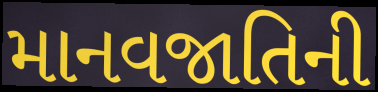
માનવજાતિની